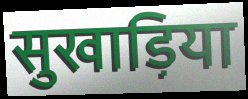
सुखाड़िया